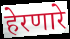
हेरणारे